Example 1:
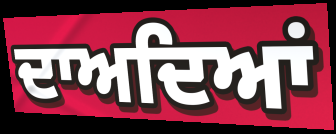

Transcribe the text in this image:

ਦਾਅਦਿਆਂ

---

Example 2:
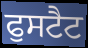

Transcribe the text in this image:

ਫੁਸਟੈਟ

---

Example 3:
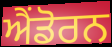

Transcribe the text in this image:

ਐਂਡੋਰਨ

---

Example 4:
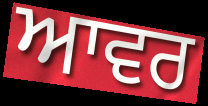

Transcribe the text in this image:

ਆਵਰ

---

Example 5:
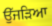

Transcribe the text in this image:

ਉੱਜੜਿਆ